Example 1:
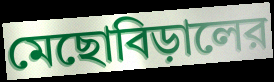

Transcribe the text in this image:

মেছোবিড়ালের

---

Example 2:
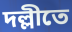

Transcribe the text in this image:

দল্লীতে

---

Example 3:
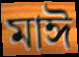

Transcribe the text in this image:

মাঈ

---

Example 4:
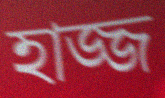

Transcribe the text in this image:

হাজ্জ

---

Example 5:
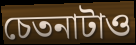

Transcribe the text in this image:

চেতনাটাও